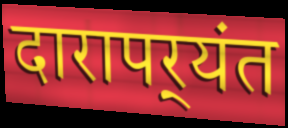
दारापर्यंत